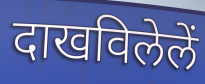
दाखविलेलें